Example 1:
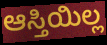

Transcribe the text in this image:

ಆಸ್ತಿಯಿಲ್ಲ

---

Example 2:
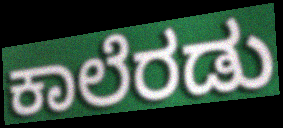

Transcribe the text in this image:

ಕಾಲೆರಡು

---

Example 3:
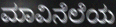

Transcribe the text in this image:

ಮಾವಿನೆಲೆಯ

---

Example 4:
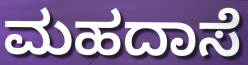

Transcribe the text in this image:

ಮಹದಾಸೆ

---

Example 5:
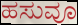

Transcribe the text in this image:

ಹಸುವೂ